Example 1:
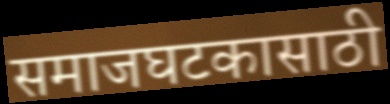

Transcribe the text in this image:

समाजघटकासाठी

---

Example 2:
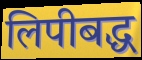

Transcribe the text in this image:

लिपीबद्ध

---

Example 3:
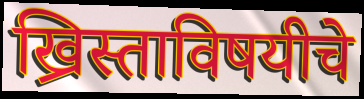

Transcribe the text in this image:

ख्रिस्ताविषयीचे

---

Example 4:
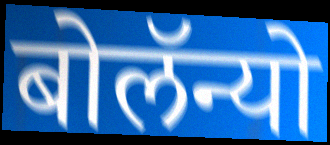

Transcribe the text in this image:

बोलॅन्यो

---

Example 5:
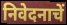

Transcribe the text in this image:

निवेदनाचें